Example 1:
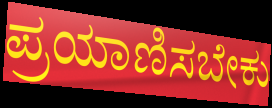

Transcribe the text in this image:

ಪ್ರಯಾಣಿಸಬೇಕು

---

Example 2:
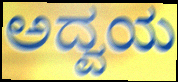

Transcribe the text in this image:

ಅದ್ವಯ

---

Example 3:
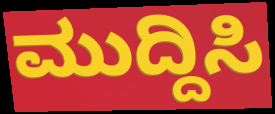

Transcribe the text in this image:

ಮುದ್ದಿಸಿ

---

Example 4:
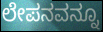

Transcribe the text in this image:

ಲೇಪನವನ್ನೂ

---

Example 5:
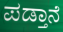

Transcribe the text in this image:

ಪಡ್ತಾನೆ